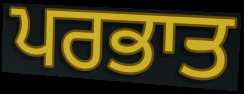
ਪਰਭਾਤ